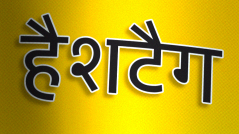
हैशटैग